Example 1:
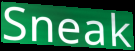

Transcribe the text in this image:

Sneak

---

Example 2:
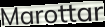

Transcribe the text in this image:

Marottar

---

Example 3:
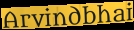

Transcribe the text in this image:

Arvindbhai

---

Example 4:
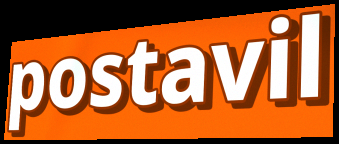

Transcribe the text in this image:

postavil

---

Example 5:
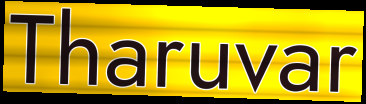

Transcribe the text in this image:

Tharuvar